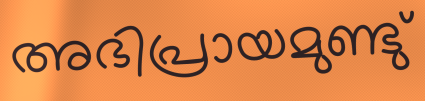
അഭിപ്രായമുണ്ടു്